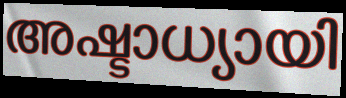
അഷ്ടാധ്യായി